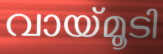
വായ്മൂടി